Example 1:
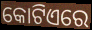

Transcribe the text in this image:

କୋଟିଏରେ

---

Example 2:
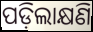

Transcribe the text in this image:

ପଡ଼ିଲାକ୍ଷଣି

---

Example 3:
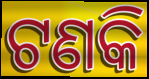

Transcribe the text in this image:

ଟଣକି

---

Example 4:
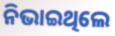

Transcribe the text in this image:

ନିଭାଇଥିଲେ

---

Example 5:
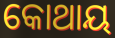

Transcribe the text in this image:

କୋଥାୟ